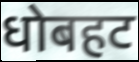
धोबहट